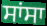
ਸਾਂਸਾ